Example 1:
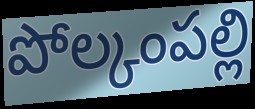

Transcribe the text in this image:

పోల్కంపల్లి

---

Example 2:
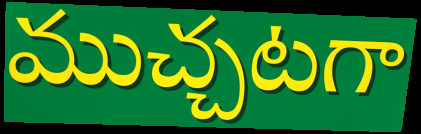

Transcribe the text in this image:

ముచ్చటగా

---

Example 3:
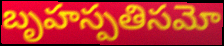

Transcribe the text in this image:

బృహస్పతిసమో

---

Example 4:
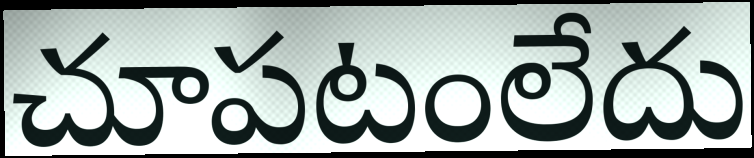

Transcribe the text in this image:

చూపటంలేదు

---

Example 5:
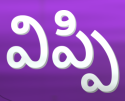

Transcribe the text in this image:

విప్పి